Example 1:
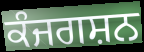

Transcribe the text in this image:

ਕੰਜਗਸ਼ਨ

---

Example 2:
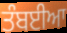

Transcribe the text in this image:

ਤੰਬਈਆ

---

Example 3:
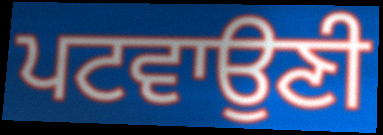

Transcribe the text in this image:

ਪਟਵਾਉਣੀ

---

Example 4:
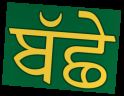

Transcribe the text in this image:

ਬੱਛੇ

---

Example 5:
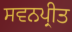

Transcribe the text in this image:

ਸਵਨਪ੍ਰੀਤ